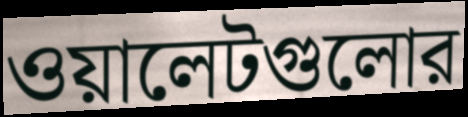
ওয়ালেটগুলোর